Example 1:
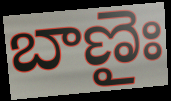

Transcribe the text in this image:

బాణైః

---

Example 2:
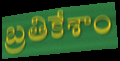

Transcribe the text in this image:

బ్రతికేశాం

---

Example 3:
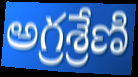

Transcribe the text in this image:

అగ్రశ్రేణి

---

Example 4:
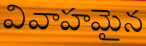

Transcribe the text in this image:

వివాహమైన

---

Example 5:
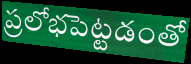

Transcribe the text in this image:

ప్రలోభపెట్టడంతో